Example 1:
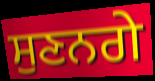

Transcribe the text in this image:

ਸੁਣਨਗੇ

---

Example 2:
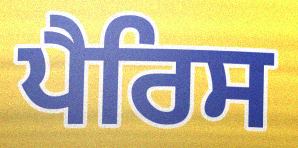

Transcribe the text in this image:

ਪੈਰਿਸ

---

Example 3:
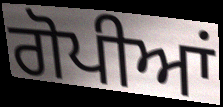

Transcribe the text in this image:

ਗੋਪੀਆਂ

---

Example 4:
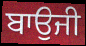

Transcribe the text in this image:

ਬਾਉਜੀ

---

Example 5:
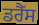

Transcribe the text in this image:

ਡਰੈੱਸ